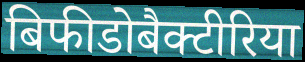
बिफीडोबैक्टीरिया